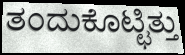
ತಂದುಕೊಟ್ಟಿತ್ತು